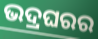
ଭଦ୍ରଘରର